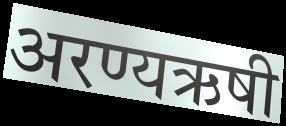
अरण्यऋषी